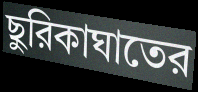
ছুরিকাঘাতের